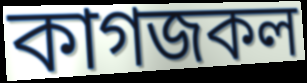
কাগজকল